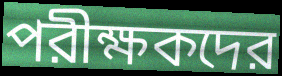
পরীক্ষকদের